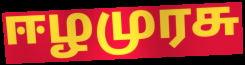
ஈழமுரசு